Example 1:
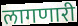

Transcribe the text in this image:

लागणारी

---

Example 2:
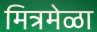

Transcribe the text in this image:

मित्रमेळा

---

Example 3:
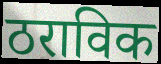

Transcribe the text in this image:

ठराविक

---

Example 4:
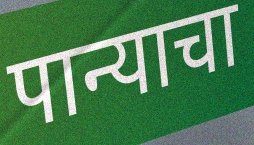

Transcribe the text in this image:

पान्याचा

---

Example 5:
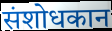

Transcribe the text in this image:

संशोधकान